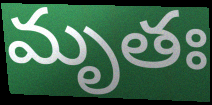
మృతః